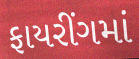
ફાયરીંગમાં